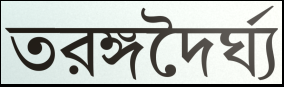
তরঙ্গদৈর্ঘ্য